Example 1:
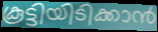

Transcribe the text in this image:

കൂട്ടിയിടിക്കാൻ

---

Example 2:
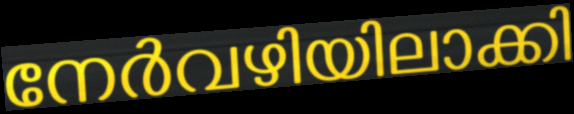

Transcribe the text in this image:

നേർവഴിയിലാക്കി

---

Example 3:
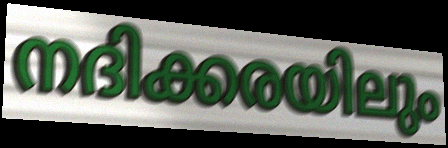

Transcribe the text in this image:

നദിക്കരയിലും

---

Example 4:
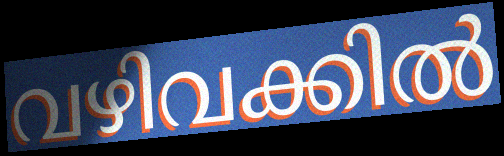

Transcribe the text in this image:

വഴിവക്കിൽ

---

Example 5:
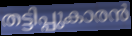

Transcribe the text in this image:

തട്ടിപ്പുകാരൻ